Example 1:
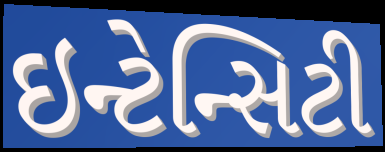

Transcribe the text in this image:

ઇન્ટેન્સિટી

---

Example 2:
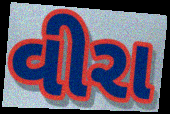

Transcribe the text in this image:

વીરા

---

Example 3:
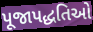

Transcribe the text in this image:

પૂજાપદ્ધતિઓ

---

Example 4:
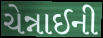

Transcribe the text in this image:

ચેન્નાઈની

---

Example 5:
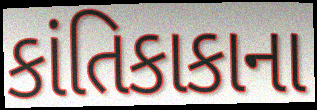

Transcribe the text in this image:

કાંતિકાકાના